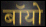
बॉयो